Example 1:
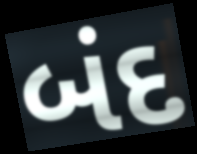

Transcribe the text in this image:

બંદ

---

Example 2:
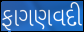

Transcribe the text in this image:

ફાગણવદી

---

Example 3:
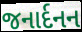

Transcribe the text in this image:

જનાર્દનન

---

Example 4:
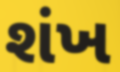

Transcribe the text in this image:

શંખ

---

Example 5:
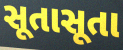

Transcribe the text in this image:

સૂતાસૂતા